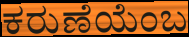
ಕರುಣೆಯೆಂಬ